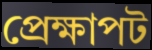
প্রেক্ষাপট